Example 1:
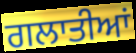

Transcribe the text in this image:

ਗਲਾਤੀਆਂ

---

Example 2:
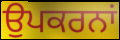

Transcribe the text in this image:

ਉਪਕਰਨਾਂ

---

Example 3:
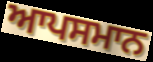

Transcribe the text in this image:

ਆਪਸਮਾਨ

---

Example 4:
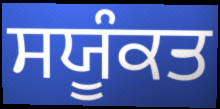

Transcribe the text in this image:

ਸਯੂੰਕਤ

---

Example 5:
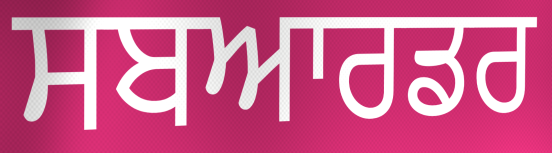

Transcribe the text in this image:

ਸਬਆਰਡਰ